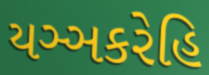
યઞ્ઞકરેહિ